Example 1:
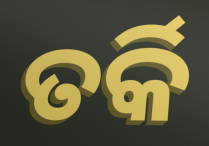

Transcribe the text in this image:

ତର୍କି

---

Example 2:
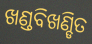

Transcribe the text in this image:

ଖଣ୍ଡବିଖଣ୍ଡିତ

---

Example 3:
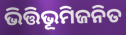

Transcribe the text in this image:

ଭିତ୍ତିଭୂମିଜନିତ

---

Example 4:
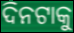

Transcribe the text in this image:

ଦିନଟାକୁ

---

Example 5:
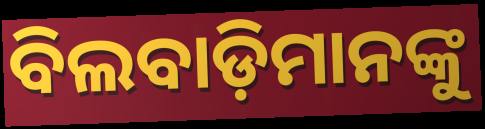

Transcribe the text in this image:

ବିଲବାଡ଼ିମାନଙ୍କୁ